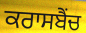
ਕਰਾਸਬੈਂਚ